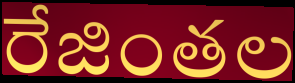
రేజింతల